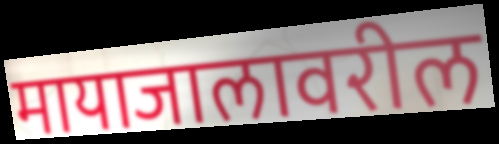
मायाजालावरील